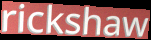
rickshaw